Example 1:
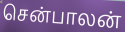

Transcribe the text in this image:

சென்பாலன்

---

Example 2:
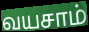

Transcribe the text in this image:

வயசாம்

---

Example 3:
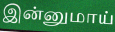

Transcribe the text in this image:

இன்னுமாய்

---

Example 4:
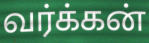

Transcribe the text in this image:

வர்க்கன்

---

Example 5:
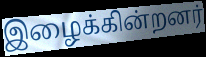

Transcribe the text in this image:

இழைக்கின்றனர்